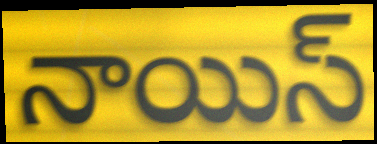
నాయిస్